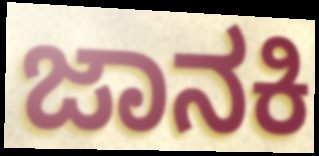
ಜಾನಕಿ